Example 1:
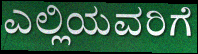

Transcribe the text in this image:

ಎಲ್ಲಿಯವರಿಗೆ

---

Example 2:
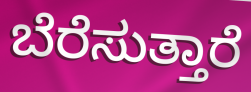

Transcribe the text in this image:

ಬೆರೆಸುತ್ತಾರೆ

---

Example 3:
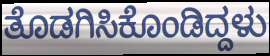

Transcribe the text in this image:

ತೊಡಗಿಸಿಕೊಂಡಿದ್ದಳು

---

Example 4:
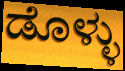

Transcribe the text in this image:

ಡೊಳ್ಳು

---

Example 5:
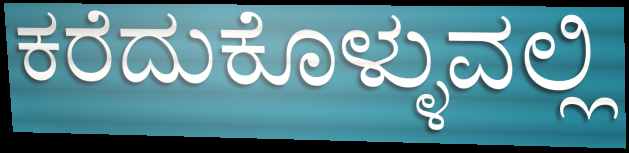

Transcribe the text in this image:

ಕರೆದುಕೊಳ್ಳುವಲ್ಲಿ